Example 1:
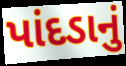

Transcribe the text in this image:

પાંદડાનું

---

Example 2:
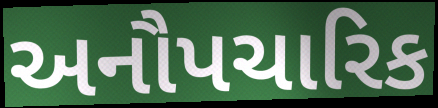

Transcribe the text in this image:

અનૌપચારિક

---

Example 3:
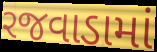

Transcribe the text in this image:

રજવાડામાં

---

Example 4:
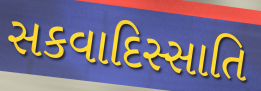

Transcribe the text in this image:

સકવાદિસ્સાતિ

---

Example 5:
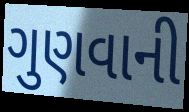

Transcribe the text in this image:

ગુણવાની